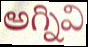
అగ్నివి